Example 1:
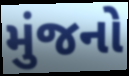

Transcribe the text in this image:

મુંજનો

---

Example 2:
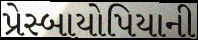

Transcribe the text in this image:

પ્રેસ્બાયોપિયાની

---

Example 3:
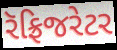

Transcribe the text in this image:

રૅફ્રિજરેટર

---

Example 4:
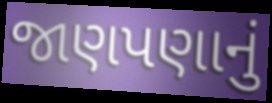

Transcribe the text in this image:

જાણપણાનું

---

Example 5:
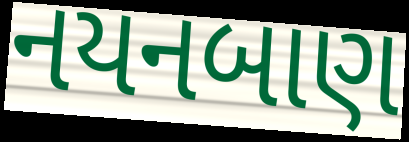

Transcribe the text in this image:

નયનબાણ